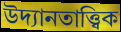
উদ্যানতাত্ত্বিক